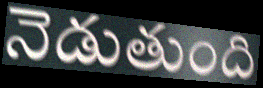
నెడుతుంది